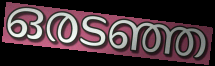
ഒരടഞ്ഞ